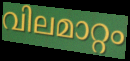
വിലമാറ്റം